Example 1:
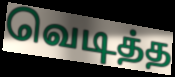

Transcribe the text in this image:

வெடித்த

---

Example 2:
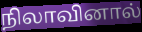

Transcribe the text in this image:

நிலாவினால்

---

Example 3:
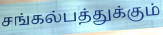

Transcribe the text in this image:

சங்கல்பத்துக்கும்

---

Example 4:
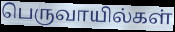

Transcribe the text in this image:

பெருவாயில்கள்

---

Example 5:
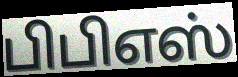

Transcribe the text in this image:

பிபிஎஸ்